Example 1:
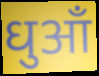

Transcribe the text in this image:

धुआँ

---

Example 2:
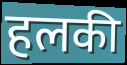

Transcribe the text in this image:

हलकी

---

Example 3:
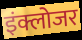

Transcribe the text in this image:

इंक्लोजर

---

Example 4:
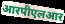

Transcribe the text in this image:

आरपीएलआर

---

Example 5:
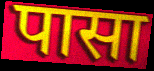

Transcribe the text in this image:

पासा